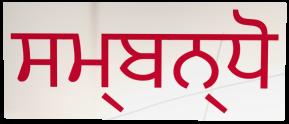
ਸਮ੍ਬਨ੍ਧੋ